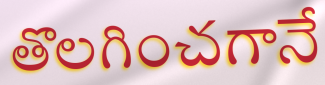
తొలగించగానే